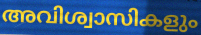
അവിശ്വാസികളും